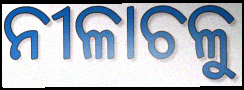
ନୀଳାଚଳୁ